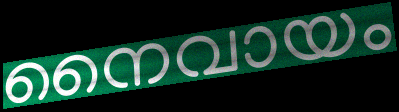
നൈവായം